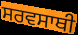
ਸਰਵਸਾਥੀ